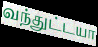
வந்துட்டயா